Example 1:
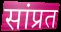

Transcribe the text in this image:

सांप्रत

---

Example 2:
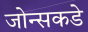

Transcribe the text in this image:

जोन्सकडे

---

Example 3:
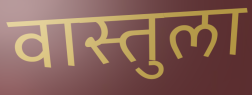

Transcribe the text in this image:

वास्तुला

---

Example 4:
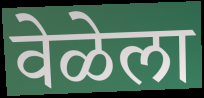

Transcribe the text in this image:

वेळेला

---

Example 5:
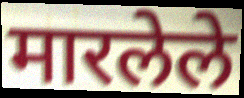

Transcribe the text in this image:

मारलेले